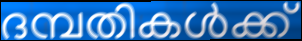
ദമ്പതികൾക്ക്